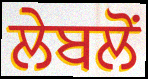
ਲੇਬਲੋਂ